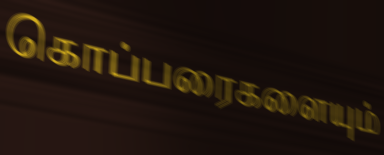
கொப்பரைகளையும்